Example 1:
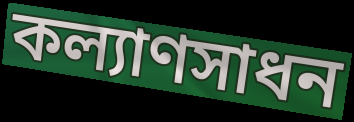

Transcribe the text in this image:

কল্যাণসাধন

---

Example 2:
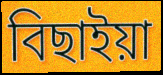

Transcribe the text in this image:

বিছাইয়া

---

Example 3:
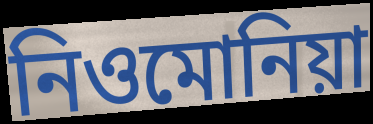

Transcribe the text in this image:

নিওমোনিয়া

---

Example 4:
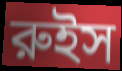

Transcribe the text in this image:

রুইস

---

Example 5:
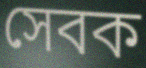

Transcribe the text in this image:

সেবক